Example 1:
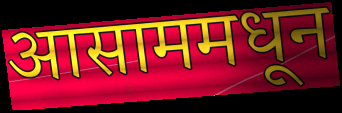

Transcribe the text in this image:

आसाममधून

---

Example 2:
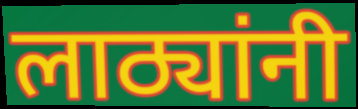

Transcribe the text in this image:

लाठ्यांनी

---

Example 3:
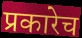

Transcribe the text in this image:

प्रकारेच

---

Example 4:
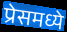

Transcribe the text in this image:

प्रेसमध्ये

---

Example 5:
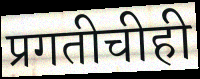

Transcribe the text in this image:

प्रगतीचीही